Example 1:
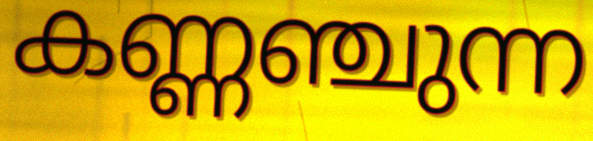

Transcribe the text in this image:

കണ്ണഞ്ചുന്ന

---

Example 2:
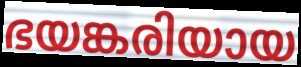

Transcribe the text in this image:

ഭയങ്കരിയായ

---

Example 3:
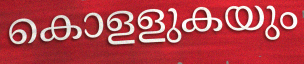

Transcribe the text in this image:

കൊളളുകയും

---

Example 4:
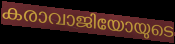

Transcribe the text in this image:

കരാവാജിയോയുടെ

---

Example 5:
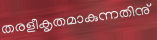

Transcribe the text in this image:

തരളീകൃതമാകുന്നതിനു്